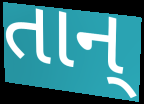
તાન્